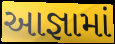
આજ્ઞામાં